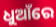
ଧୁଆଁରେ